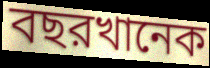
বছরখানেক